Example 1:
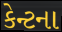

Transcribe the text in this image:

કેન્ટના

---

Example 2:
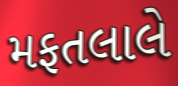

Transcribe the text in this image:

મફતલાલે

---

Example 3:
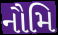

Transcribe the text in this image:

નૌમિ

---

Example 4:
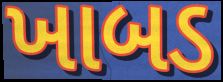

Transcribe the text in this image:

ખાબડ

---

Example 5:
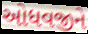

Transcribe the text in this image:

ઓધવજીને